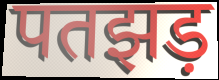
पतझड़